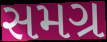
સમગ્ર